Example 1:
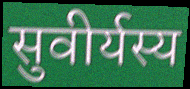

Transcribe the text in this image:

सुवीर्यस्य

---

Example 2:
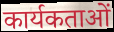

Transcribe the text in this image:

कार्यकताओं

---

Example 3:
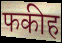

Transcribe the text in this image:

फकीह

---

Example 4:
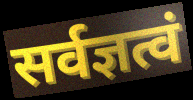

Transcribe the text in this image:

सर्वज्ञत्वं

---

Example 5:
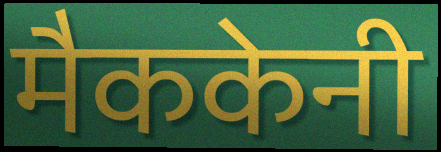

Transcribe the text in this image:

मैककेनी